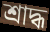
শ্ৰাদ্ধ